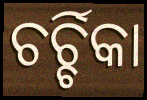
ଚର୍ଚ୍ଚିକା